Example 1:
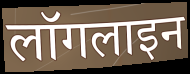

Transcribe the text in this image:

लॉगलाइन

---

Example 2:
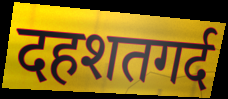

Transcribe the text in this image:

दहशतगर्द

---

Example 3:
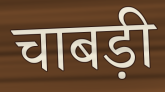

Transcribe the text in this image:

चाबड़ी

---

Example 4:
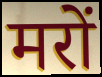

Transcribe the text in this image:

मरों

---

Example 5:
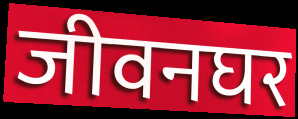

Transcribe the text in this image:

जीवनघर